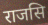
राजसि